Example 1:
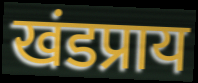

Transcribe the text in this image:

खंडप्राय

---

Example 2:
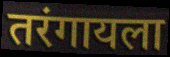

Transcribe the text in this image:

तरंगायला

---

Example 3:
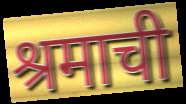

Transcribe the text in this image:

श्रमाची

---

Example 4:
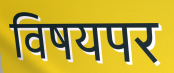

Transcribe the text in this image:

विषयपर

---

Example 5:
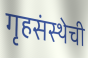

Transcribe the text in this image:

गृहसंस्थेची